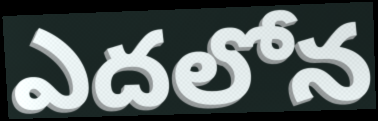
ఎదలోన